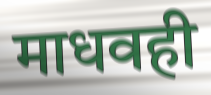
माधवही